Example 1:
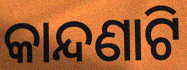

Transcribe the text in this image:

କାନ୍ଦଣାଟି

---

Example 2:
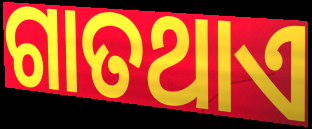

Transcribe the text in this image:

ଗାତଥାଏ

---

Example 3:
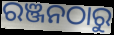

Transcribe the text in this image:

ରଞ୍ଜନଠାରୁ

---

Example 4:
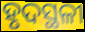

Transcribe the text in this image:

ହୃଦସ୍ଥଳୀ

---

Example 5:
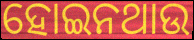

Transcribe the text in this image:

ହୋଇନଥାଉ